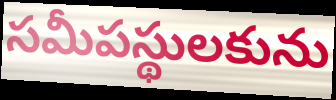
సమీపస్థులకును